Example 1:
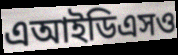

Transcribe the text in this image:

এআইডিএসও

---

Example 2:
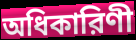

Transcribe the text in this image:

অধিকারিণী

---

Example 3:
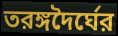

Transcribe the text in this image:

তরঙ্গদৈর্ঘের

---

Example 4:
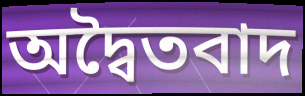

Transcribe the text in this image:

অদ্বৈতবাদ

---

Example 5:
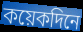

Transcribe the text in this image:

কয়েকদিনে